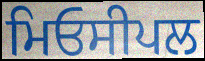
ਮਿਓਸੀਪਲ